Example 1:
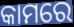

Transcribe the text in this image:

କାମରେ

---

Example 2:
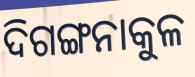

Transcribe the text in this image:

ଦିଗଙ୍ଗନାକୁଳ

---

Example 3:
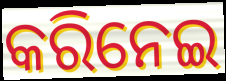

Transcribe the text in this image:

କରିନେଇ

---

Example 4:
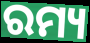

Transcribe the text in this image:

ରମ୍ୟ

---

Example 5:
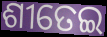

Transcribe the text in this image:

ଶୀତେଇ